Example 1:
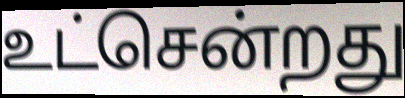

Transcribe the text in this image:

உட்சென்றது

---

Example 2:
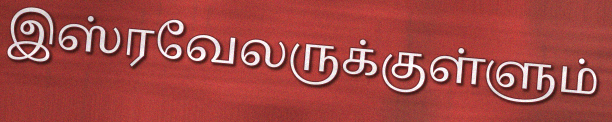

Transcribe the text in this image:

இஸ்ரவேலருக்குள்ளும்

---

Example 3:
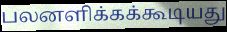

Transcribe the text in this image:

பலனளிக்கக்கூடியது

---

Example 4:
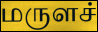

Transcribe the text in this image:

மருளச்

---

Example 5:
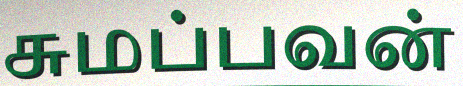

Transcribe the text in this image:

சுமப்பவன்